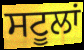
ਸਟੂਲਾਂ